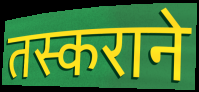
तस्कराने